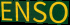
ENSO